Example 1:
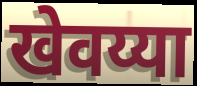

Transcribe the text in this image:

खेवय्या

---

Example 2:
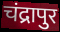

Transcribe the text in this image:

चंद्रापुर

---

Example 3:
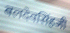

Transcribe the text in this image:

बलदेवसिंहजी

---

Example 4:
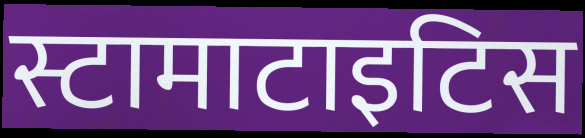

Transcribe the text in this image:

स्टामाटाइटिस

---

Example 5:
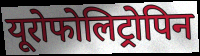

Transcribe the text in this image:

यूरोफोलिट्रोपिन